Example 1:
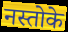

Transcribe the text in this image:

नस्तोके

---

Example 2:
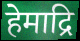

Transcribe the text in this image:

हेमाद्रि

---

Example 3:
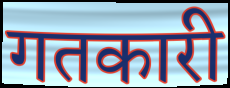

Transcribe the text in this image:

गतकारी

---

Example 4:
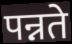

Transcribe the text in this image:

पन्नते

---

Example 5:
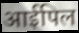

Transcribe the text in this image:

आईपिल